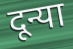
दून्या